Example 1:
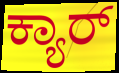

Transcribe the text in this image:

ಕ್ಯಾರ್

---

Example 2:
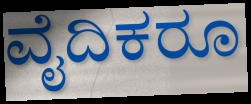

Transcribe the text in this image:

ವೈದಿಕರೂ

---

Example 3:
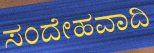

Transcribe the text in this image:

ಸಂದೇಹವಾದಿ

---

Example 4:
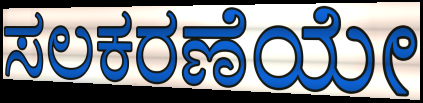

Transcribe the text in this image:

ಸಲಕರಣೆಯೇ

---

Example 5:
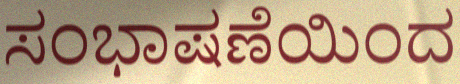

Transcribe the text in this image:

ಸಂಭಾಷಣೆಯಿಂದ